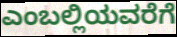
ಎಂಬಲ್ಲಿಯವರೆಗೆ